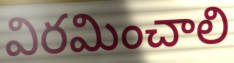
విరమించాలి